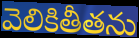
వెలికితీతను